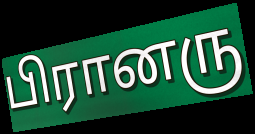
பிரானரு